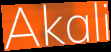
Akali